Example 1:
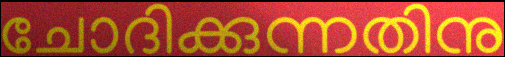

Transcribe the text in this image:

ചോദിക്കുന്നതിനു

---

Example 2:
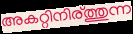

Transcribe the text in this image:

അകറ്റിനിര്ത്തുന്ന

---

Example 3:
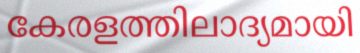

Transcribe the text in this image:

കേരളത്തിലാദ്യമായി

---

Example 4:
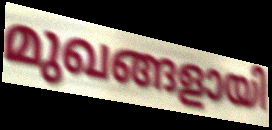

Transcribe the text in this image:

മുഖങ്ങളായി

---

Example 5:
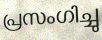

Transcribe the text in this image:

പ്രസംഗിച്ചു